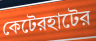
কেটেরহাটের